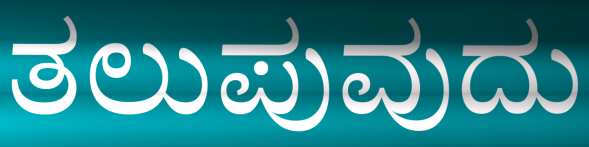
ತಲುಪುವುದು